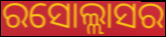
ରସୋଲ୍ଲାସର